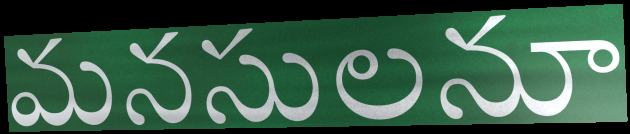
మనసులనూ